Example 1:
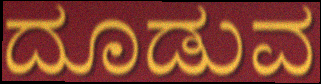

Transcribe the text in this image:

ದೂಡುವ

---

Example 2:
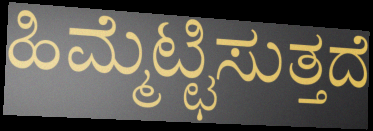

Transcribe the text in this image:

ಹಿಮ್ಮೆಟ್ಟಿಸುತ್ತದೆ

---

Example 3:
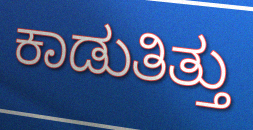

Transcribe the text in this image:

ಕಾಡುತಿತ್ತು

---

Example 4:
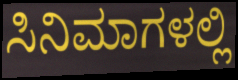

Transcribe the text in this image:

ಸಿನಿಮಾಗಳಲ್ಲಿ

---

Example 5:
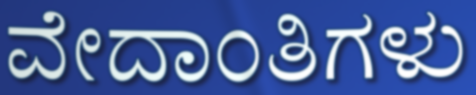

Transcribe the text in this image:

ವೇದಾಂತಿಗಳು